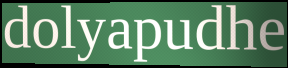
dolyapudhe